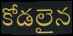
కోడలైన